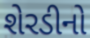
શેરડીનો